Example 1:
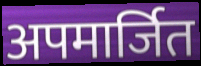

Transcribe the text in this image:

अपमार्जित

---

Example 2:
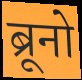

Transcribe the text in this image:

ब्रूनो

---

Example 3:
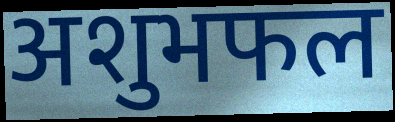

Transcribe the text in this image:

अशुभफल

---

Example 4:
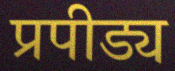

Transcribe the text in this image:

प्रपीड्य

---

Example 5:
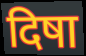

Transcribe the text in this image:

दिषा